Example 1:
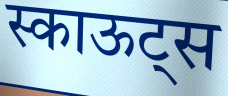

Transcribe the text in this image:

स्काऊट्स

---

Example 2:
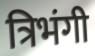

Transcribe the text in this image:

त्रिभंगी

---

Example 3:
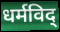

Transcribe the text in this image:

धर्मविद्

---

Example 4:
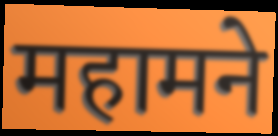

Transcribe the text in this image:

महामने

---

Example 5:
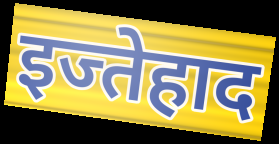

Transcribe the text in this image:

इज्तेहाद